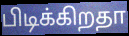
பிடிக்கிறதா